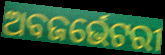
ଅବଜର୍ଭେଟରୀ